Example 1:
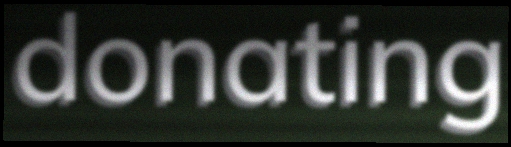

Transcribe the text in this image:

donating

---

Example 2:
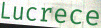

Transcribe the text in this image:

Lucrece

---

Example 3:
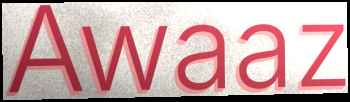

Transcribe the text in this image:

Awaaz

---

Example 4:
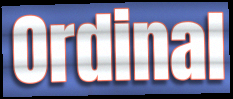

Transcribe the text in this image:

Ordinal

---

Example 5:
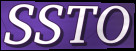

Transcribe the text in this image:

SSTO